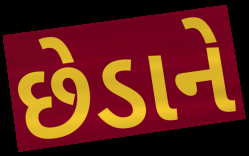
છેડાને